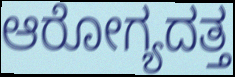
ಆರೋಗ್ಯದತ್ತ